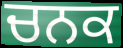
ਚਨਕ